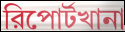
রিপোর্টখানা